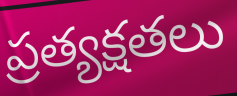
ప్రత్యక్షతలు